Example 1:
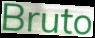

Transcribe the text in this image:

Bruto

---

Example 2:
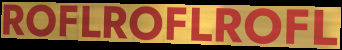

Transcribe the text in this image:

ROFLROFLROFL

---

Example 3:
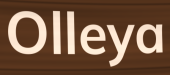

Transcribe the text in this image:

Olleya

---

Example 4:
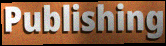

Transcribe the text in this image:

Publishing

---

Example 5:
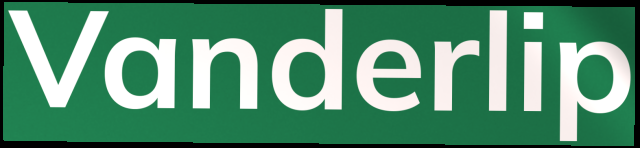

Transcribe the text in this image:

Vanderlip